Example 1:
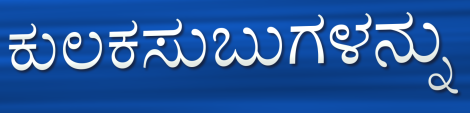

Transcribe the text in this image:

ಕುಲಕಸುಬುಗಳನ್ನು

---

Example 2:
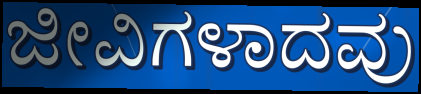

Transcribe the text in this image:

ಜೀವಿಗಳಾದವು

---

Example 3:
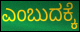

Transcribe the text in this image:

ಎಂಬುದಕ್ಕೆ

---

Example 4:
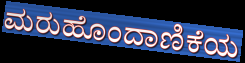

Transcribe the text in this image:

ಮರುಹೊಂದಾಣಿಕೆಯ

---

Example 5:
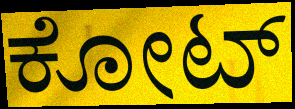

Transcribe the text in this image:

ಕೋಟ್